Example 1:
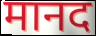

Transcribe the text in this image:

मानद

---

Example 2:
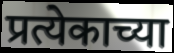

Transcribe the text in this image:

प्रत्येकाच्या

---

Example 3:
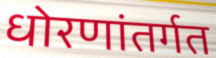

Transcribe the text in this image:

धोरणांतर्गत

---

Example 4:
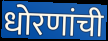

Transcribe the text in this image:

धोरणांची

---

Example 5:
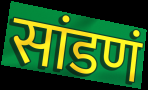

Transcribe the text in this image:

सांडणं